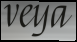
veya